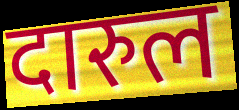
दारुल